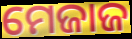
ମେଜାଜ